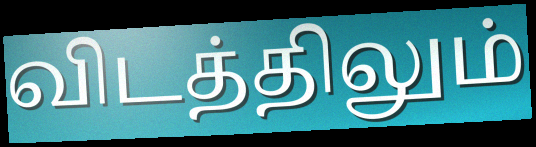
விடத்திலும்